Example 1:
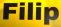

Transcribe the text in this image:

Filip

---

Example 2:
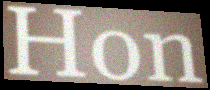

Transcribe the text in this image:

Hon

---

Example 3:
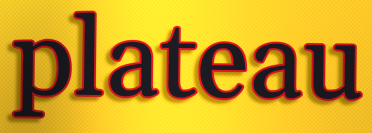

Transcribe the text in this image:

plateau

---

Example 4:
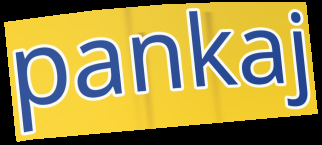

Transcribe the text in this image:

pankaj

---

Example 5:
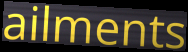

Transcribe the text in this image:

ailments